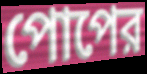
পোপের